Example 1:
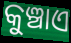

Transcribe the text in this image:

କୁଞ୍ଚାଏ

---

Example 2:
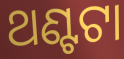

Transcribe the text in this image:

ଥଣ୍ଟଟା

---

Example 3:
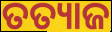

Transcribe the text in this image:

ତତ୍ୟାଜ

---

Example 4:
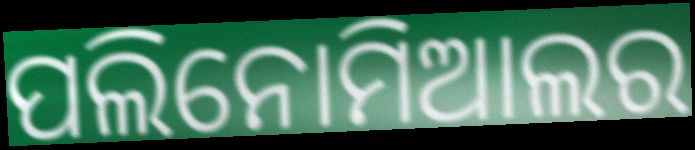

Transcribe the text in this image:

ପଲିନୋମିଆଲର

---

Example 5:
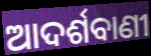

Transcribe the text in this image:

ଆଦର୍ଶବାଣୀ